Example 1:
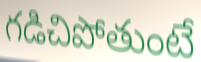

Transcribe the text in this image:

గడిచిపోతుంటే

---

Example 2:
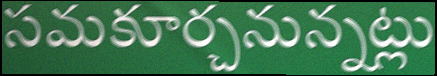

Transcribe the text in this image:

సమకూర్చనున్నట్లు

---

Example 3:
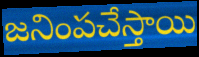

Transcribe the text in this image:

జనింపచేస్తాయి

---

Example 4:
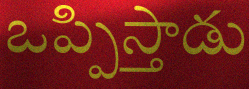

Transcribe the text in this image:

ఒప్పిస్తాడు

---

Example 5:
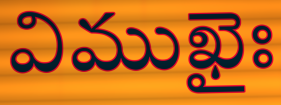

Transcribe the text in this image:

విముఖైః